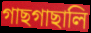
গাছগাছালি